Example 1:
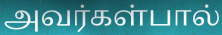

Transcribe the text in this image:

அவர்கள்பால்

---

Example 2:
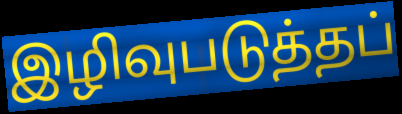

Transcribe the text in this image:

இழிவுபடுத்தப்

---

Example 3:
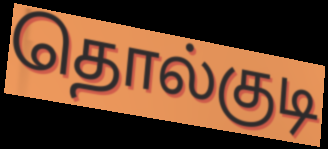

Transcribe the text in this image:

தொல்குடி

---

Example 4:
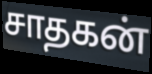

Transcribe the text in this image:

சாதகன்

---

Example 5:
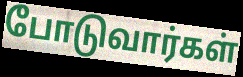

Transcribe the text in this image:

போடுவார்கள்